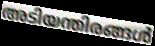
അടിയന്തിരങ്ങൾ